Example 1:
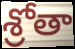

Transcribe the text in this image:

శ్రోతా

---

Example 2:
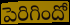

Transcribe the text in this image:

పెరిగిందో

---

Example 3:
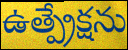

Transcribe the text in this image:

ఉత్ప్రేక్షను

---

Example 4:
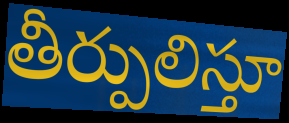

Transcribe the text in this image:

తీర్పులిస్తూ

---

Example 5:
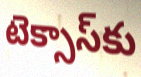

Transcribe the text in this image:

టెక్సాస్‌కు